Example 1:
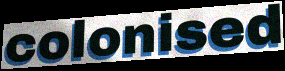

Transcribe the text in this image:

colonised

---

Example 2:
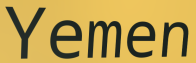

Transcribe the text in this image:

Yemen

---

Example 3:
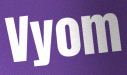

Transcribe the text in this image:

Vyom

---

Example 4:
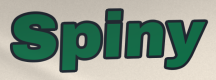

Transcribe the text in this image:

Spiny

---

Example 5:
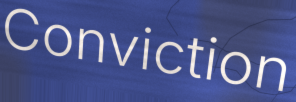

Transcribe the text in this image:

Conviction